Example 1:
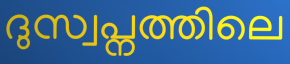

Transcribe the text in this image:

ദുസ്വപ്നത്തിലെ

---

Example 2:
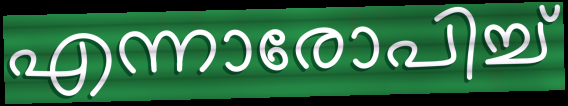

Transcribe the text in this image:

എന്നാരോപിച്ച്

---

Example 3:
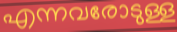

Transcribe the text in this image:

എന്നവരോടുള്ള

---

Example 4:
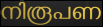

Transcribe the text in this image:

നിരൂപണ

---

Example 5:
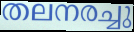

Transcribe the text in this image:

തലനരച്ചു